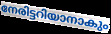
നേരിട്ടറിയാനാകും